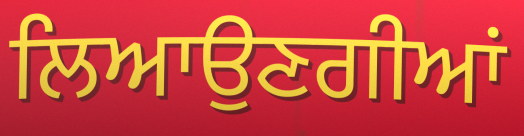
ਲਿਆਉਣਗੀਆਂ